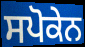
ਸਪੋਕੇਨ